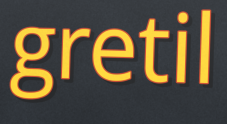
gretil